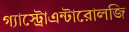
গ্যাস্ট্রোএন্টারোলজি